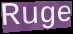
Ruge